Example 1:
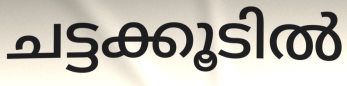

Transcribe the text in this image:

ചട്ടക്കൂടിൽ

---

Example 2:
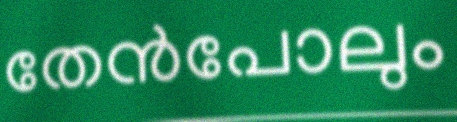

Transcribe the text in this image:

തേൻപോലും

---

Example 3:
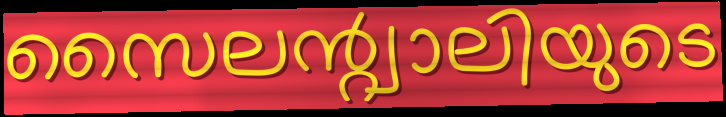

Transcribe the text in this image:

സൈലന്റ്വാലിയുടെ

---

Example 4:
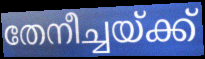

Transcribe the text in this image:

തേനീച്ചയ്ക്ക്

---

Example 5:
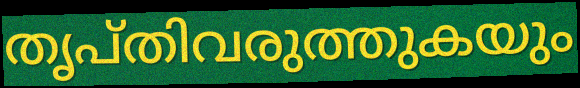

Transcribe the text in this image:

തൃപ്തിവരുത്തുകയും